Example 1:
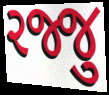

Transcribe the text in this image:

રજ્જુ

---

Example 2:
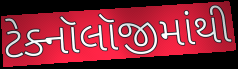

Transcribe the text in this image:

ટેક્નૉલૉજીમાંથી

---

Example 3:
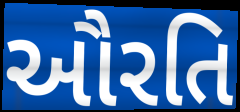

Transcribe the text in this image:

ઔરતિ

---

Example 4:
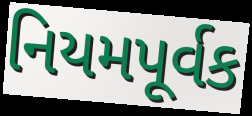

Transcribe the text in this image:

નિયમપૂર્વક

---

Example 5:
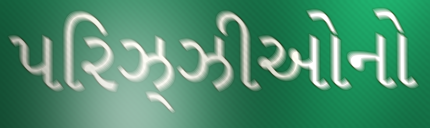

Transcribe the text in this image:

પરિઝ્ઝીઓનો